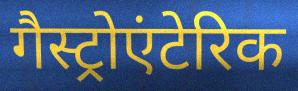
गैस्ट्रोएंटेरिक